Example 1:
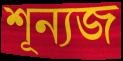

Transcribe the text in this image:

শূন্যজ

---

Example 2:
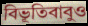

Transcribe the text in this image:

বিভূতিবাবুও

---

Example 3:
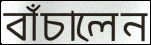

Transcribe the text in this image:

বাঁচালেন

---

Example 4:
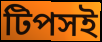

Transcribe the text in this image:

টিপসই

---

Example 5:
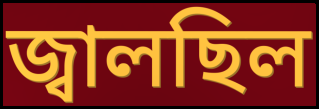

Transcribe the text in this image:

জ্বালছিল